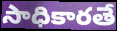
సాధికారతే